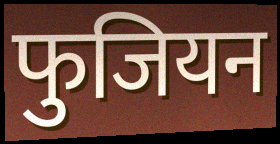
फुजियन